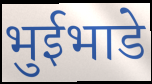
भुईभाडे